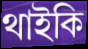
থাইকি